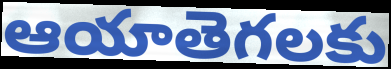
ఆయాతెగలకు